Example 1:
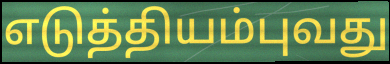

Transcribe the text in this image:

எடுத்தியம்புவது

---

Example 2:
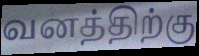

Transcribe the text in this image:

வனத்திற்கு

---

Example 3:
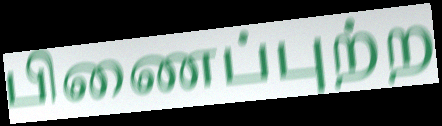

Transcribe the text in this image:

பிணைப்புற்ற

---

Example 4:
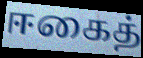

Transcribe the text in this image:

ஈகைத்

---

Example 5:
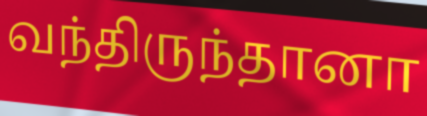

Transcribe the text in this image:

வந்திருந்தானா